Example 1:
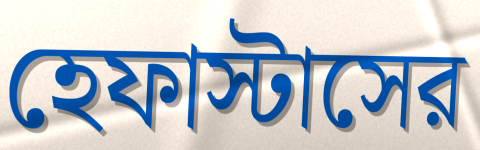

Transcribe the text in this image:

হেফাস্টাসের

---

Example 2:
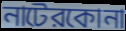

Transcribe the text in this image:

নাটেরকোনা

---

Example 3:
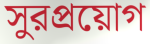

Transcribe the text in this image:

সুরপ্রয়োগ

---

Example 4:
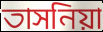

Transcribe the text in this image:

তাসনিয়া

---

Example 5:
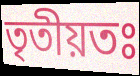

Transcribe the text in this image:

তৃতীয়তঃ